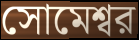
সোমেশ্বর